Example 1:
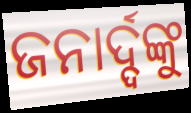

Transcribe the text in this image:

ଜନାର୍ଦ୍ଦଙ୍କୁ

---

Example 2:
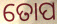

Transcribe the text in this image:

ତୋପ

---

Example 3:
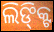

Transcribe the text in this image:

ଲିଙ୍କ୍ଟି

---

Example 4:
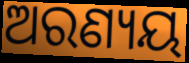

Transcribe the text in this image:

ଅରଣ୍ୟୟ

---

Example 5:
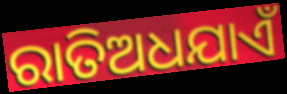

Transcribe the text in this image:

ରାତିଅଧଯାଏଁ